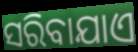
ସରିବାଯାଏ